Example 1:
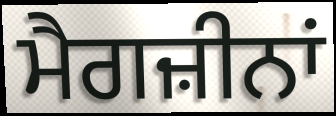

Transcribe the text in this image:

ਮੈਗਜ਼ੀਨਾਂ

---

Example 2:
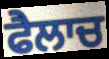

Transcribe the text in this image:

ਫੈਲਾਚ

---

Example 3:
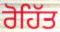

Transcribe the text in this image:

ਰੋਹਿੱਤ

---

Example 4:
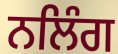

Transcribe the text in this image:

ਨਲਿੰਗ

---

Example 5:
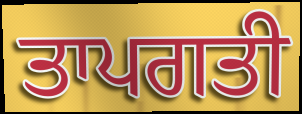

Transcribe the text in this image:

ਤਾਪਗਤੀ